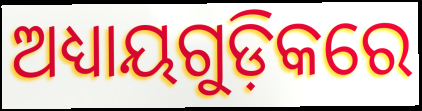
ଅଧ୍ୟାୟଗୁଡ଼ିକରେ